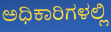
ಅಧಿಕಾರಿಗಳಲ್ಲಿ